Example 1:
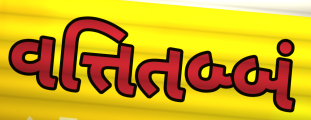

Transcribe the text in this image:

વત્તિતબ્બં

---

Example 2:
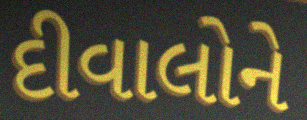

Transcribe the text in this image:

દીવાલોને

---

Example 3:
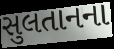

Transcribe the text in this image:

સુલતાનના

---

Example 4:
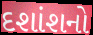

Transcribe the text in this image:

દશાંશનો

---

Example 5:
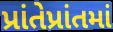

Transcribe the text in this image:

પ્રાંતેપ્રાંતમાં